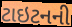
ટાઇટનની